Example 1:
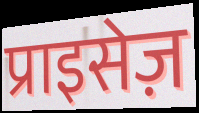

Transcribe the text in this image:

प्राइसेज़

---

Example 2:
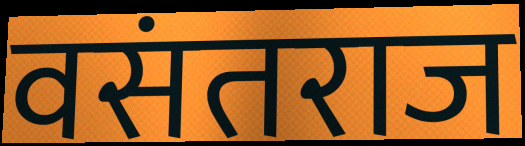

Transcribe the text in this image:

वसंतराज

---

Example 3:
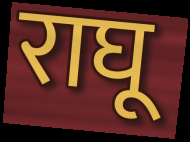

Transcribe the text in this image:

राघू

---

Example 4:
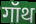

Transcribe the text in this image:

गॉथ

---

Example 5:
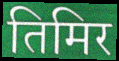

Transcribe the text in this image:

तिमिर